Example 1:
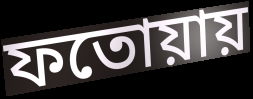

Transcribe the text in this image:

ফতোয়ায়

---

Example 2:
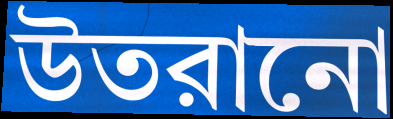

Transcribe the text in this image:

উতরানো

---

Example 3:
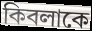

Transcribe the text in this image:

কিবলাকে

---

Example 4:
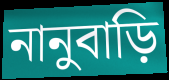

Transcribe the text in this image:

নানুবাড়ি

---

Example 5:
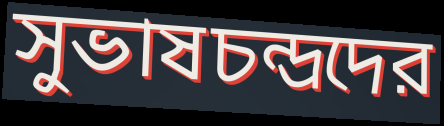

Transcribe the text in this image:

সুভাষচন্দ্রদের